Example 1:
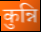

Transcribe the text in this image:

कुन्नि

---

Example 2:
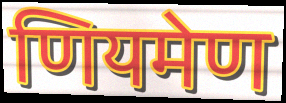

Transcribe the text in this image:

णियमेण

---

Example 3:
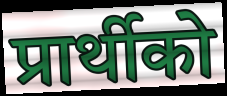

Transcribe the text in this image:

प्रार्थीको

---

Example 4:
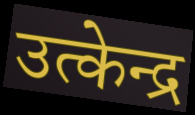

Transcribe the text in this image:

उत्केन्द्र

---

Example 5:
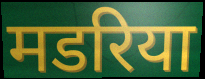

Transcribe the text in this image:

मडरिया